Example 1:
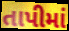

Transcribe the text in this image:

તાપીમાં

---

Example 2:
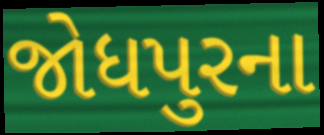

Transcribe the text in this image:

જોધપુરના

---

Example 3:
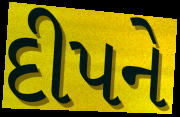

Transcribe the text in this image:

દીપને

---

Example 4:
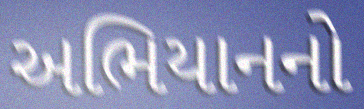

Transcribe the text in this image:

અભિયાનનો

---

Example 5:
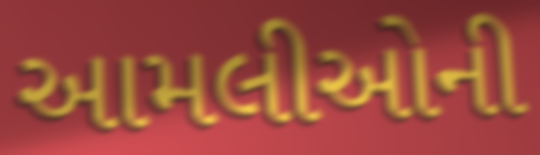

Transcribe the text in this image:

આમલીઓની